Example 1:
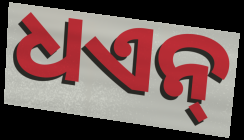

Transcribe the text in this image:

ଧଏନ୍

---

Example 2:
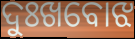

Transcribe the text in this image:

ଦୁଃଖବୋଝ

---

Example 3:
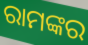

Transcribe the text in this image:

ରାମଙ୍କର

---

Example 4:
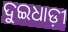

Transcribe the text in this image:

ଦୁଇଧାଡ଼ୀ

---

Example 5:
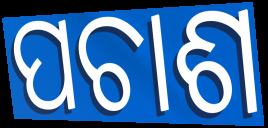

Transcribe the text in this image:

ପଚାଶ